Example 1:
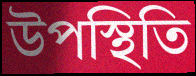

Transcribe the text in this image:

উপস্থিতি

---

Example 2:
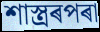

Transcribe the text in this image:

শাস্ত্ৰৰপৰা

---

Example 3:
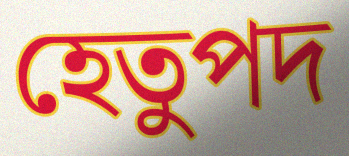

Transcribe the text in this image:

হেতুপদ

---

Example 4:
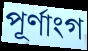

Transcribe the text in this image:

পূৰ্ণাংগ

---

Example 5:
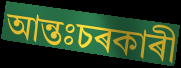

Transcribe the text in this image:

আন্তঃচৰকাৰী